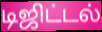
டிஜிட்டல்